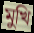
মুখি